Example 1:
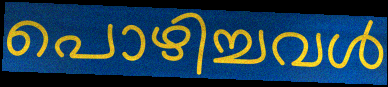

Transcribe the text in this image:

പൊഴിച്ചവൾ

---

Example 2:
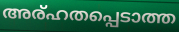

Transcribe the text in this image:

അര്ഹതപ്പെടാത്ത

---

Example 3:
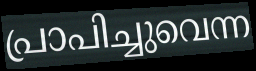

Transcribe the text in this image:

പ്രാപിച്ചുവെന്ന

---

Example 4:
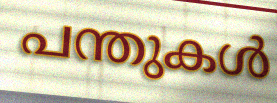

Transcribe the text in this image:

പന്തുകൾ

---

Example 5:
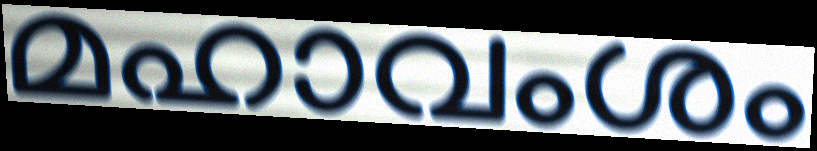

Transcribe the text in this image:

മഹാവംശം